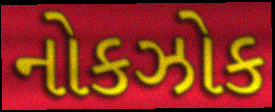
નોકઝોક